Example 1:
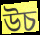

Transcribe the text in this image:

উচ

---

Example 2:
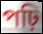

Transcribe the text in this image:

পঢ়ি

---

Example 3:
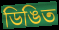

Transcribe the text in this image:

ডিঙিত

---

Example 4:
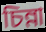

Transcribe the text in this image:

চিন্না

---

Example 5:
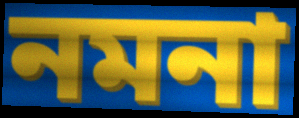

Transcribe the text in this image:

নমনা